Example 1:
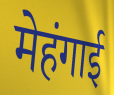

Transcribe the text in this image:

मेहंगाई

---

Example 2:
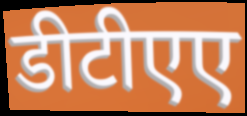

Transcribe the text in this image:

डीटीएए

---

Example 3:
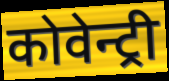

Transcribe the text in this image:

कोवेन्ट्री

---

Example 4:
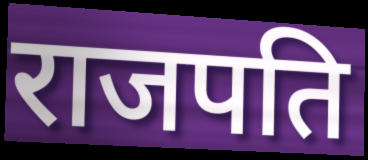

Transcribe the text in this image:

राजपति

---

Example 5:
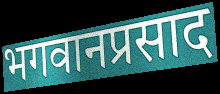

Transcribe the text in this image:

भगवानप्रसाद